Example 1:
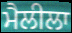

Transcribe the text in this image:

ਮੈਲੀਲਾ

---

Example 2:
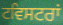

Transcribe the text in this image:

ਟਵਿਸਟਰਾਂ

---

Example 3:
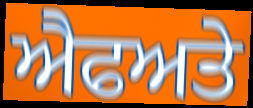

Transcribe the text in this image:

ਐਫਅਤੇ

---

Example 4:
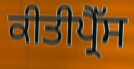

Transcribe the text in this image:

ਕੀਤੀਪ੍ਰੈੱਸ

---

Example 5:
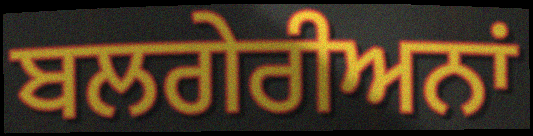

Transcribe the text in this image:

ਬਲਗੇਰੀਅਨਾਂ